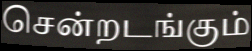
சென்றடங்கும்